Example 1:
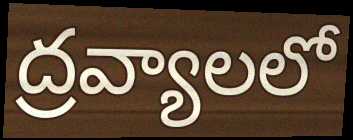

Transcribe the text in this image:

ద్రవ్యాలలో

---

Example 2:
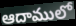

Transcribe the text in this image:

ఆదాములో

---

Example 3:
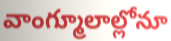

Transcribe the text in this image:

వాంగ్మూలాల్లోనూ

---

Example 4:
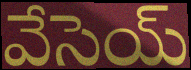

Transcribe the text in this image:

వేసెయ్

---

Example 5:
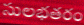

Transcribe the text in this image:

సులభతరం